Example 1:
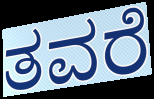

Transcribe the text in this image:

ತವರೆ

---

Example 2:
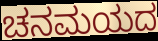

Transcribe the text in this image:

ಚನಮಯದ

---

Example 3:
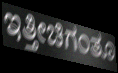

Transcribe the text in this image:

ಇತ್ತೀಚಿಗಂತೂ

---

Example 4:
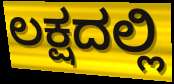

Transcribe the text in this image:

ಲಕ್ಷದಲ್ಲಿ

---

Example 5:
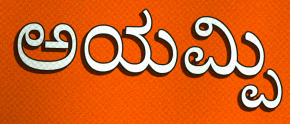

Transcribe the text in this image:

ಅಯಮ್ಪಿ